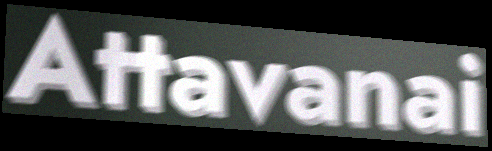
Attavanai